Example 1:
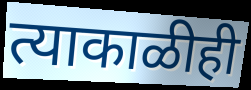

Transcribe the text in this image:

त्याकाळीही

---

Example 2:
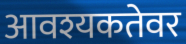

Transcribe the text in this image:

आवश्यकतेवर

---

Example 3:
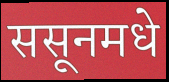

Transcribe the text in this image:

ससूनमधे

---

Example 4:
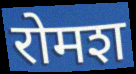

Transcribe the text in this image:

रोमश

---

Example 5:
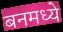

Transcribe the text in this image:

बनमध्ये